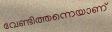
വേണ്ടിത്തന്നെയാണ്